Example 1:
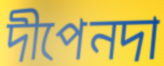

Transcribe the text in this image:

দীপেনদা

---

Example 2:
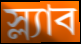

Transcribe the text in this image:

স্ল্যাব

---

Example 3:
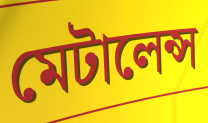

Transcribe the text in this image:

মেটালেন্স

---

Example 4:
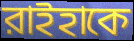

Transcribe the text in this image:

রাইহাকে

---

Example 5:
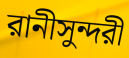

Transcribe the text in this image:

রানীসুন্দরী